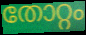
തോറ്റം